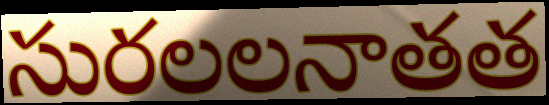
సురలలనాతత